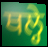
ਥਲ੍ਹੇ